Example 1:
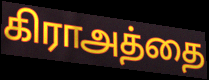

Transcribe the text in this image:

கிராஅத்தை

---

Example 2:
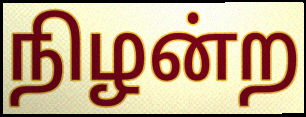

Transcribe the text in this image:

நிழன்ற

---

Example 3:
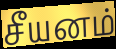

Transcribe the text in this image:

சீயனம்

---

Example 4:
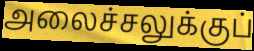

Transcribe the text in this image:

அலைச்சலுக்குப்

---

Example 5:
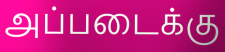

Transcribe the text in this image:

அப்படைக்கு